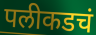
पलीकडचं